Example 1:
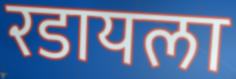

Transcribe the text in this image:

रडायला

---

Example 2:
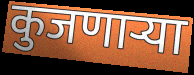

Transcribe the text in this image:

कुजणाऱ्या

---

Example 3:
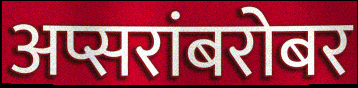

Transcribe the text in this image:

अप्सरांबरोबर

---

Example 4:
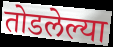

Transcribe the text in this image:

तोडलेल्या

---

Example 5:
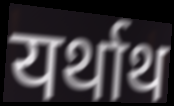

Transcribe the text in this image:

यर्थाथ